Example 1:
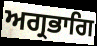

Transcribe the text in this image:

ਅਗ੍ਰਭਾਗਿ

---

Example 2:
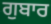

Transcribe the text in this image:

ਗੁਬਾਰ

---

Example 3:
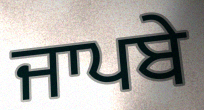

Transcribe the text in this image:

ਜਾਪਬੇ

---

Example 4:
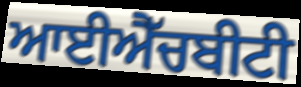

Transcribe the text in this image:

ਆਈਐੱਚਬੀਟੀ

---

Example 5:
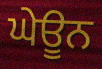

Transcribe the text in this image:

ਘੇਊਨ